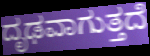
ದೃಢವಾಗುತ್ತದೆ